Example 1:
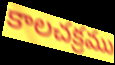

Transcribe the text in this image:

కాలచక్రము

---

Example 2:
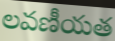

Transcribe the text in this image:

లవణీయత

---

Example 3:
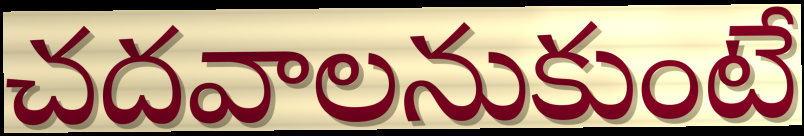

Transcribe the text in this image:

చదవాలనుకుంటే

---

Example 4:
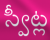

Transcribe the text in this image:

స్వీట్ల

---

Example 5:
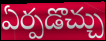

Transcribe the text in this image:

ఏర్పడొచ్చు